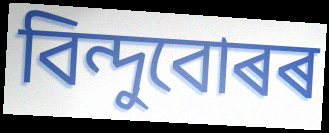
বিন্দুবোৰৰ